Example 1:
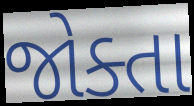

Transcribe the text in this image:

જોક્તા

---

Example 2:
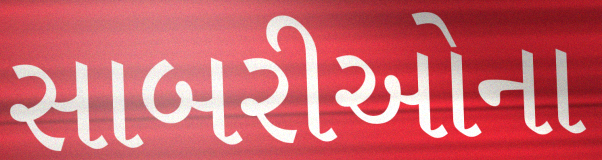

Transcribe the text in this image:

સાબરીઓના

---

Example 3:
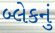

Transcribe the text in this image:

બ્લેકનું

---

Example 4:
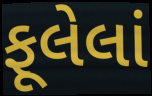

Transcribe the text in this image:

ફૂલેલાં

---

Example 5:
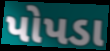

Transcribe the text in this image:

પોપડા